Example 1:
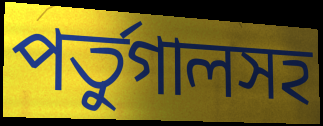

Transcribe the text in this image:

পর্তুগালসহ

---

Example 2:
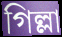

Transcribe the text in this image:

গিল্লা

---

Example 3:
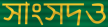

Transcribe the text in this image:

সাংসদও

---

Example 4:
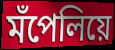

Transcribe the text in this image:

মঁপেলিয়ে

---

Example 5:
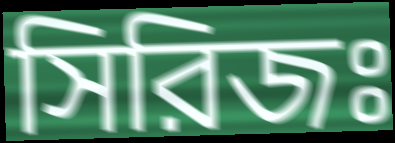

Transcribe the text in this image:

সিরিজঃ